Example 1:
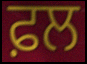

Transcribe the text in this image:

ਫ਼ਲ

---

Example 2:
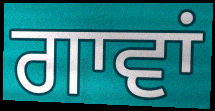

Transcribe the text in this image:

ਗਾਵਾਂ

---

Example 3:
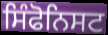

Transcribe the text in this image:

ਸਿੰਫੋਨਿਸਟ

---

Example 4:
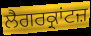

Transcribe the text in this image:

ਲੈਗਰਕ੍ਰਾਂਟਜ਼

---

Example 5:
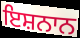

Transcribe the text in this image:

ਇਸ਼ਨਾਨ